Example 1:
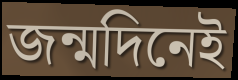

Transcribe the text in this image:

জন্মদিনেই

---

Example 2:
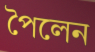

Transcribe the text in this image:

পৈলেন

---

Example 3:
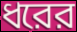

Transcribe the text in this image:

ধরের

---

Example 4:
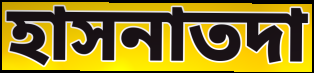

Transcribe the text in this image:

হাসনাতদা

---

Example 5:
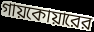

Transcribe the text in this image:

গায়কোয়ারের